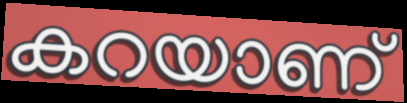
കറയാണ്